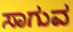
ಸಾಗುವ